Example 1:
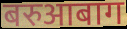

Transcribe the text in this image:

बरुआबाग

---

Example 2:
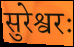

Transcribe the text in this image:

सुरेश्वरः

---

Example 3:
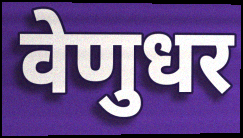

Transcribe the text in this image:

वेणुधर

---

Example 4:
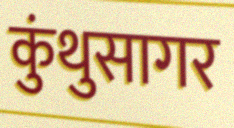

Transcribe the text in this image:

कुंथुसागर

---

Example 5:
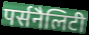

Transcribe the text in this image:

पर्सनैलिटी